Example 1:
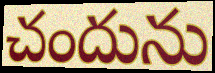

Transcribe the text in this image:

చందును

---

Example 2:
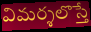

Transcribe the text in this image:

విమర్శలొస్తే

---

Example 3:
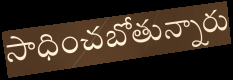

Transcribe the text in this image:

సాధించబోతున్నారు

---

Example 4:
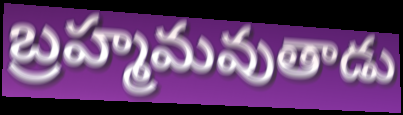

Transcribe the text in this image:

బ్రహ్మమవుతాడు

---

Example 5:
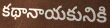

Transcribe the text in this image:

కథానాయకునికి